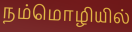
நம்மொழியில்